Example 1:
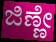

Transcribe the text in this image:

ಜಿಣ್ಣೇ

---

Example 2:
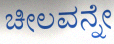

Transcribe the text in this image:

ಚೀಲವನ್ನೇ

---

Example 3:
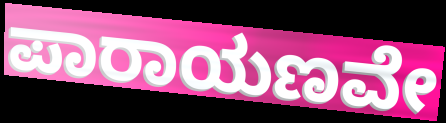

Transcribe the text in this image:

ಪಾರಾಯಣವೇ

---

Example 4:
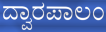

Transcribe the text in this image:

ದ್ವಾರಪಾಲಂ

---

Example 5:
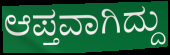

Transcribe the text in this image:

ಆಪ್ತವಾಗಿದ್ದು